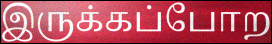
இருக்கப்போற